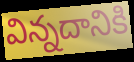
విన్నదానికి